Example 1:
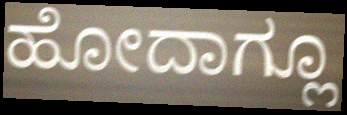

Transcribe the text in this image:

ಹೋದಾಗ್ಲೂ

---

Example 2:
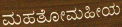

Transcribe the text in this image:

ಮಹತೋಮಹೀಯ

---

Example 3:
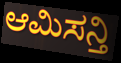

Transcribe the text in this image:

ಆಮಿಸನ್ತಿ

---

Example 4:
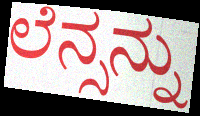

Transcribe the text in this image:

ಲೆನ್ಸನ್ನು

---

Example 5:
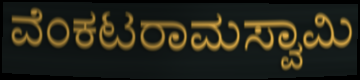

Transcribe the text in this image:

ವೆಂಕಟರಾಮಸ್ವಾಮಿ